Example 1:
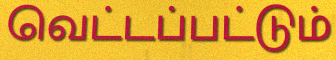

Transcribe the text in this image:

வெட்டப்பட்டும்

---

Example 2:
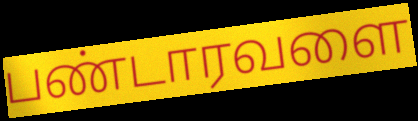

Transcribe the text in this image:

பண்டாரவளை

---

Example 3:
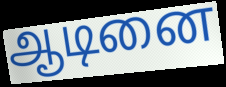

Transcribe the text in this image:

ஆடினை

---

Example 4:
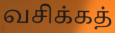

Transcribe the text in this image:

வசிக்கத்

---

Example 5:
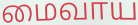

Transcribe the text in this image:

மைவாய